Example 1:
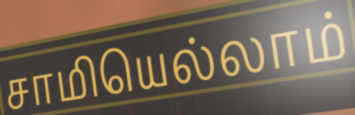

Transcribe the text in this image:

சாமியெல்லாம்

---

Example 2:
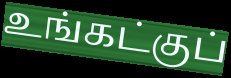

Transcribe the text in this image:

உங்கட்குப்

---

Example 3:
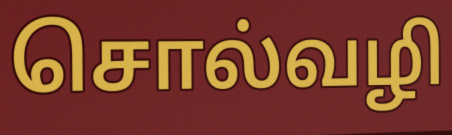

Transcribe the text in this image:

சொல்வழி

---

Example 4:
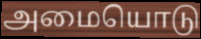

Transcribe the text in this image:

அமையொடு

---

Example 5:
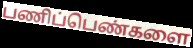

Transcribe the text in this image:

பணிப்பெண்களை